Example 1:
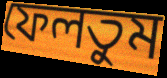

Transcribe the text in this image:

ফেলতুম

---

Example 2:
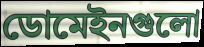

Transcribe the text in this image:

ডোমেইনগুলো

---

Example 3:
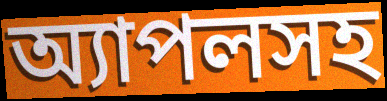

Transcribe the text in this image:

অ্যাপলসহ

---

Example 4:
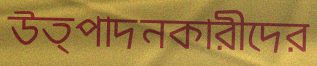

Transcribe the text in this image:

উত্পাদনকারীদের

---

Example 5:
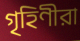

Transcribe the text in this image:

গৃহিণীরা